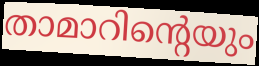
താമാറിന്റെയും